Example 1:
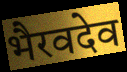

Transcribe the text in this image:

भैरवदेव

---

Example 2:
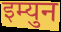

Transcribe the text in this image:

इम्‍युन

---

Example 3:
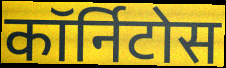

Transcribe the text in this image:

कॉर्निटोस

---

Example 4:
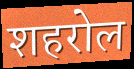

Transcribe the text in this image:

शहरोल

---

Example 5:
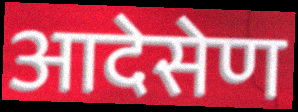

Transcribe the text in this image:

आदेसेण